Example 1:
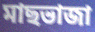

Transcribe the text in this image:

মাছভাজা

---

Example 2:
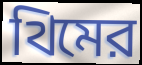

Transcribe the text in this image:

থিমের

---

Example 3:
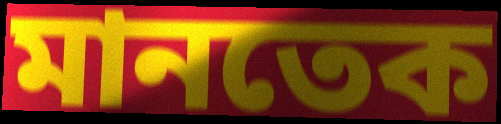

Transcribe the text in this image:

মানতেক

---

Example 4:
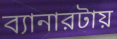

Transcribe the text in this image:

ব্যানারটায়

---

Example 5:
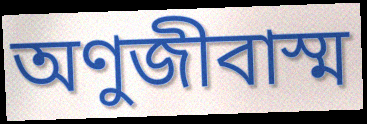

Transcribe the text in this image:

অণুজীবাস্ম